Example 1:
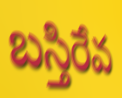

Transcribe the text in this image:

బస్తిరేవ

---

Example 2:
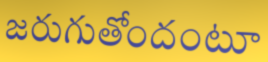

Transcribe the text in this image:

జరుగుతోందంటూ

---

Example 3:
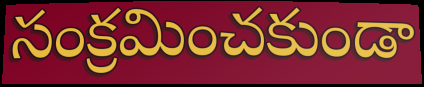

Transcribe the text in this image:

సంక్రమించకుండా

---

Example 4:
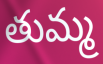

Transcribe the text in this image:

తుమ్మ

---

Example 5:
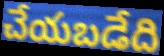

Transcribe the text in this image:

చేయబడేది